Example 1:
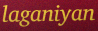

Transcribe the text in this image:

laganiyan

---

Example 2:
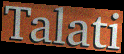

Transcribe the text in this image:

Talati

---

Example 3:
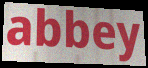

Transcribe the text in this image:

abbey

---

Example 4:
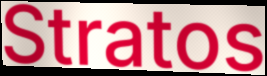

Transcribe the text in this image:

Stratos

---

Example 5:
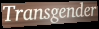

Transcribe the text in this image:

Transgender